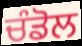
ਚੰਡੋਲ